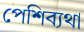
পেশিব্যথা